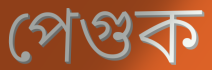
পেগুক